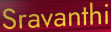
Sravanthi